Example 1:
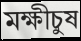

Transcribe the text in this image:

মক্ষীচুষ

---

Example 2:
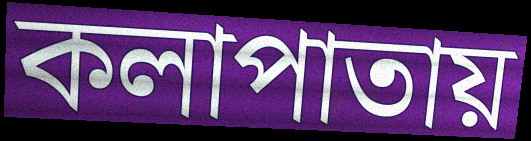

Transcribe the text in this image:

কলাপাতায়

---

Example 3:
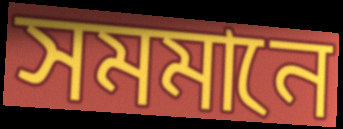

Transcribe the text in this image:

সমমানে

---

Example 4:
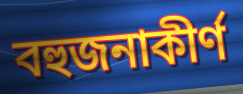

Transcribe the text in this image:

বহুজনাকীর্ণ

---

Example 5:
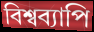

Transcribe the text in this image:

বিশ্বব্যাপি